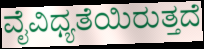
ವೈವಿಧ್ಯತೆಯಿರುತ್ತದೆ